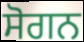
ਸੋਗਨ